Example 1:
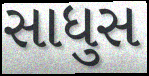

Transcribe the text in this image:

સાધુસ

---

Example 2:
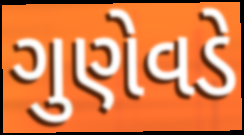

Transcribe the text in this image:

ગુણેવડે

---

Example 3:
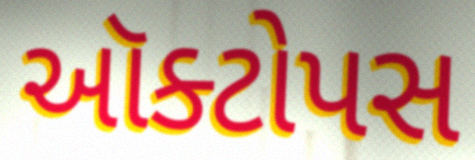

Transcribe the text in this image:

ઑક્ટોપસ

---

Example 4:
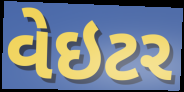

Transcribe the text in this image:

વેઇટર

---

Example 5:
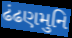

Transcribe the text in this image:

ઢંઢણમુનિ